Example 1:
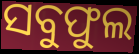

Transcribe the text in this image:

ସବୁଫୁଲ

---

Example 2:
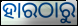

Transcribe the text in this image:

ହାରଠାରୁ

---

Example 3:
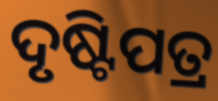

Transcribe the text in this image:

ଦୃଷ୍ଟିପତ୍ର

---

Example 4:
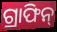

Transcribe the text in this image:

ଗ୍ରାଫିନ୍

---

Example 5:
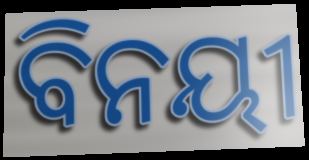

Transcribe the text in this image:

ବିନୟୀ